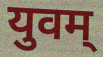
युवम्